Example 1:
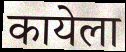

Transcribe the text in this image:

कायेला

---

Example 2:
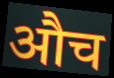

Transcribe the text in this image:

औच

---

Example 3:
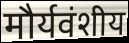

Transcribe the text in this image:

मौर्यवंशीय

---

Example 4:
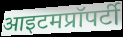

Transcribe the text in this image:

आइटमप्रॉपर्टी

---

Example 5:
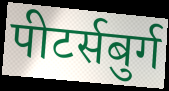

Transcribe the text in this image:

पीटर्सबुर्ग